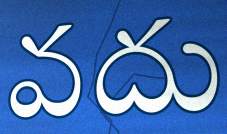
వదు